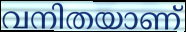
വനിതയാണ്